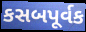
કસબપૂર્વક